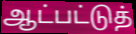
ஆட்பட்டுத்